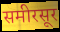
समीरसूर